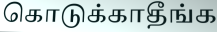
கொடுக்காதீங்க